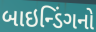
બાઇન્ડિંગનો